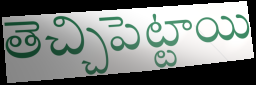
తెచ్చిపెట్టాయి